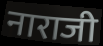
नाराजी